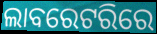
ଲାବରେଟରିରେ